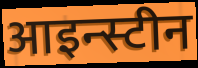
आइन्स्टीन